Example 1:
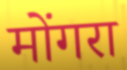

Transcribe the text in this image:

मोंगरा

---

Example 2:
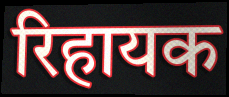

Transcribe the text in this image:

रिहायक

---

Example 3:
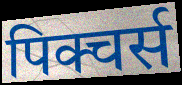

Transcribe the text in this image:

पिक्चर्स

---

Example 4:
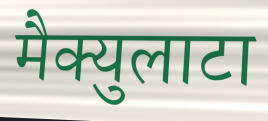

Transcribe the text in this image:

मैक्युलाटा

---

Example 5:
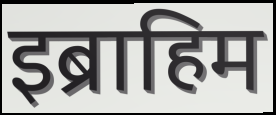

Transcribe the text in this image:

इब्राहिम